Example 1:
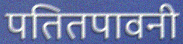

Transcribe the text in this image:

पतितपावनी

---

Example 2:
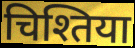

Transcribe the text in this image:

चिश्तिया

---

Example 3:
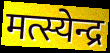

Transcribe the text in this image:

मत्स्येन्द्र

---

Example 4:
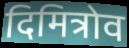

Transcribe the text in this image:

दिमित्रोव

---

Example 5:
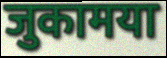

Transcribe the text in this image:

जुकामया